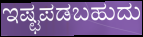
ಇಷ್ಟಪಡಬಹುದು